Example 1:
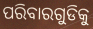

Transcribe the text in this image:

ପରିବାରଗୁଡିକୁ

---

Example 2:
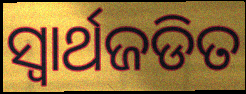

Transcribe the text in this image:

ସ୍ଵାର୍ଥଜଡିତ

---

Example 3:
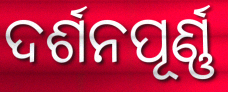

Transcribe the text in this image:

ଦର୍ଶନପୂର୍ଣ୍ଣ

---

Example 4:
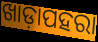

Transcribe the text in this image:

ଖାଡ଼ାପହରା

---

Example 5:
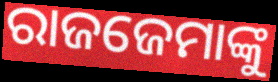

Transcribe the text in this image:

ରାଜଜେମାଙ୍କୁ